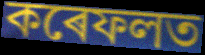
কৰেফলত